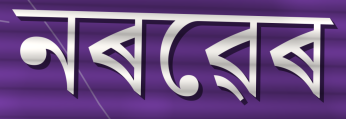
নৰৱেৰ